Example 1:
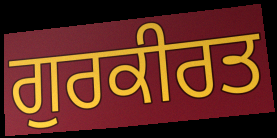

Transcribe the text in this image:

ਗੁਰਕੀਰਤ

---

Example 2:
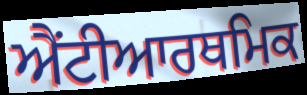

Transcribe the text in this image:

ਐਂਟੀਆਰਥਮਿਕ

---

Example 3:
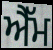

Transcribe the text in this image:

ਐੈੱਮ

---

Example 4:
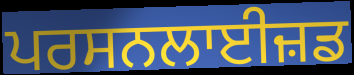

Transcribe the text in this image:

ਪਰਸਨਲਾਈਜ਼ਡ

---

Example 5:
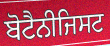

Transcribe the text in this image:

ਬੋਟੈਨੀਜਿਸਟ